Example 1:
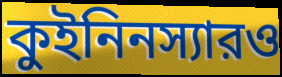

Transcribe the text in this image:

কুইনিনস্যারও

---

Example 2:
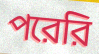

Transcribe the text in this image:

পরেরি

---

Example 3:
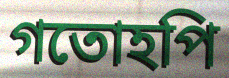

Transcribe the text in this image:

গতোহপি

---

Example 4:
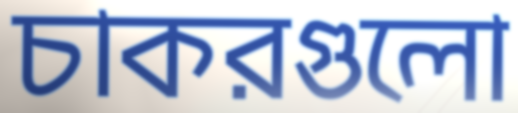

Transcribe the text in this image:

চাকরগুলো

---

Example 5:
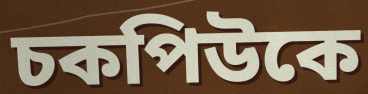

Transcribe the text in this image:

চকপিউকে